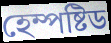
হেম্পষ্টিড